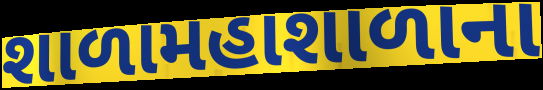
શાળામહાશાળાના